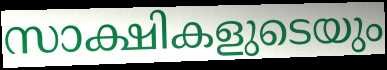
സാക്ഷികളുടെയും